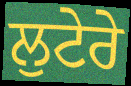
ਲੁਟੇਰੇ